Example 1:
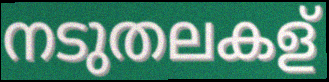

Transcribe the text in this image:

നടുതലകള്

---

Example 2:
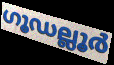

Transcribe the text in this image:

ഗൂഡല്ലൂർ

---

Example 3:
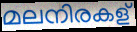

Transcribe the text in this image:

മലനിരകള്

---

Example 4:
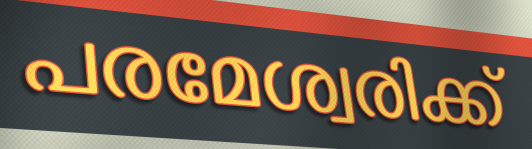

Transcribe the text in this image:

പരമേശ്വരിക്ക്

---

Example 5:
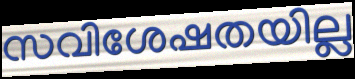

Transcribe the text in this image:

സവിശേഷതയില്ല